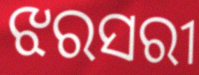
ଝରସରୀ